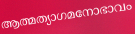
ആത്മത്യാഗമനോഭാവം